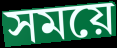
সময়ে